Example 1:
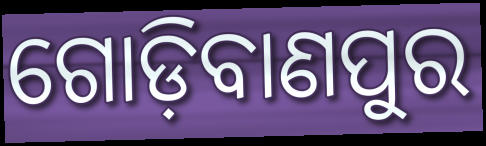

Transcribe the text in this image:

ଗୋଡ଼ିବାଣପୁର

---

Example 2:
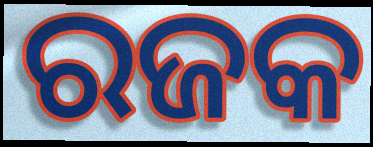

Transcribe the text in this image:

ରଜକ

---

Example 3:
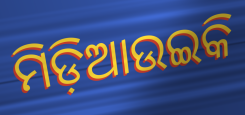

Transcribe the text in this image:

ମିଡ଼ିଆଉଇକି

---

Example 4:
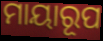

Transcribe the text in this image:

ମାୟାରୂପ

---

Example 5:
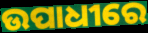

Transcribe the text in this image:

ଉପାଧୀରେ